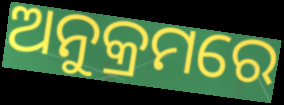
ଅନୁକ୍ରମରେ